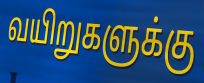
வயிறுகளுக்கு